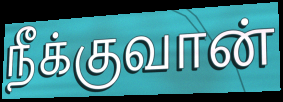
நீக்குவான்